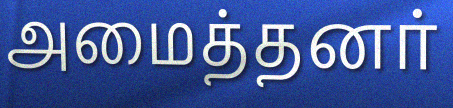
அமைத்தனர்